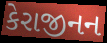
કેરાજીનન